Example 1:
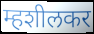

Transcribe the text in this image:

म्हशीलकर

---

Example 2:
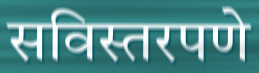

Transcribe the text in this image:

सविस्तरपणे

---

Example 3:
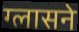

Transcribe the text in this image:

ग्लासने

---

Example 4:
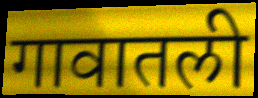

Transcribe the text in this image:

गावातली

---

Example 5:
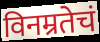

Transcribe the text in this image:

विनम्रतेचं